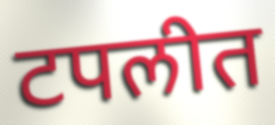
टपलीत